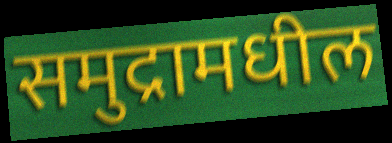
समुद्रामधील